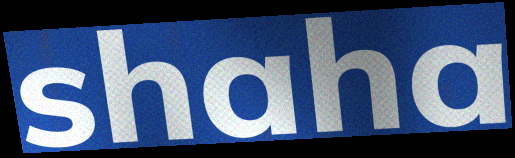
shaha